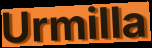
Urmilla